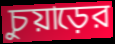
চুয়াড়ের